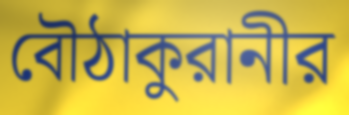
বৌঠাকুরানীর